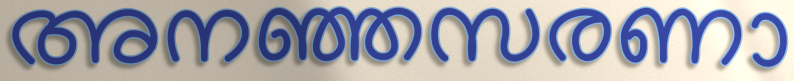
അനഞ്ഞസരണാ